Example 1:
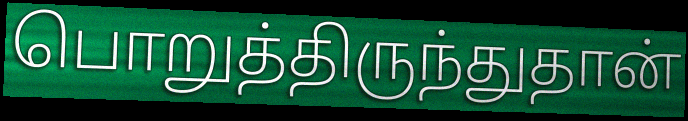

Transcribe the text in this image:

பொறுத்திருந்துதான்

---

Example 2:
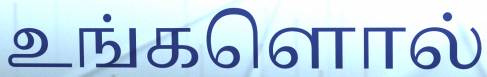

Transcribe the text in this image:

உங்களொல்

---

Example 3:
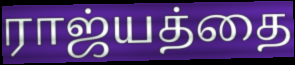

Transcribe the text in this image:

ராஜ்யத்தை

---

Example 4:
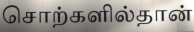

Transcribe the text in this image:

சொற்களில்தான்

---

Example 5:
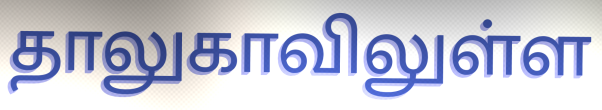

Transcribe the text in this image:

தாலுகாவிலுள்ள